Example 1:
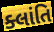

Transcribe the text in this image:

ક્લાંતિ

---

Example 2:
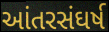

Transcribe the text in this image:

આંતરસંઘર્ષ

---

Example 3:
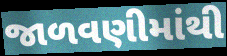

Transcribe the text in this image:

જાળવણીમાંથી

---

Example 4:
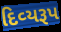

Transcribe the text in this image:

દિવ્‍યરૂપ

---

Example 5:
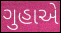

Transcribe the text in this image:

ગુહાએ